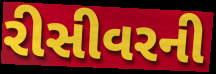
રીસીવરની